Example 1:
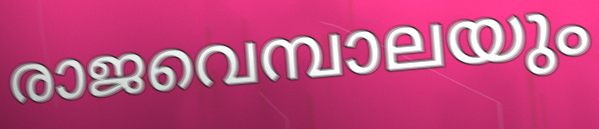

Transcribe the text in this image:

രാജവെമ്പാലയും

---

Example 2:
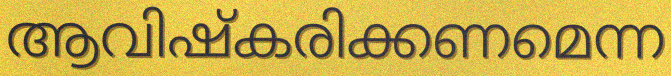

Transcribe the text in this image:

ആവിഷ്കരിക്കണമെന്ന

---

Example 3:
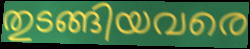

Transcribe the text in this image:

തുടങ്ങിയവരെ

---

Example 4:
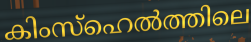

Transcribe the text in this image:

കിംസ്ഹെൽത്തിലെ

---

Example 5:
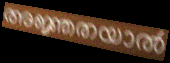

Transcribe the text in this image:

അജ്ഞതയാൽ